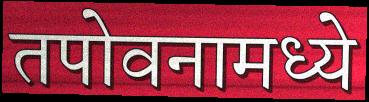
तपोवनामध्ये